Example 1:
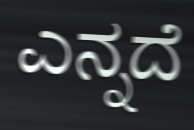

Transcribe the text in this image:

ಎನ್ನದೆ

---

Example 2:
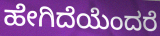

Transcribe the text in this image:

ಹೇಗಿದೆಯೆಂದರೆ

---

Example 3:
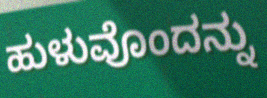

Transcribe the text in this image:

ಹುಳುವೊಂದನ್ನು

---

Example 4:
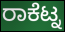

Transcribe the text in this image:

ರಾಕೆಟ್ನ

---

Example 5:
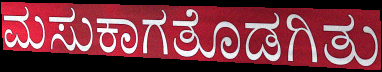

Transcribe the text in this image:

ಮಸುಕಾಗತೊಡಗಿತು